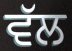
ਵੱਲ